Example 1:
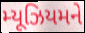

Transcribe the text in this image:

મ્યૂઝિયમને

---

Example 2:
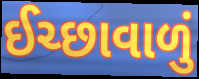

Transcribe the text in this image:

ઈચ્છાવાળું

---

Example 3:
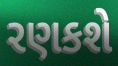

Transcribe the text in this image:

રણકશે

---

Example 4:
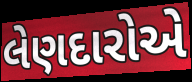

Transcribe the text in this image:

લેણદારોએ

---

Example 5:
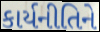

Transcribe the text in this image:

કાર્યનીતિને